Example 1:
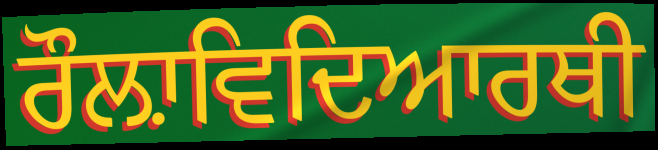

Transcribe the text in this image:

ਰੌਲ਼ਾਵਿਦਿਆਰਥੀ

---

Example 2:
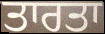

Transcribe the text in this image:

ਤਾਰਤਾ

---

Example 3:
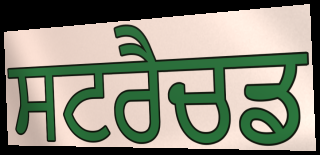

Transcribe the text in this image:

ਸਟਰੈਚਡ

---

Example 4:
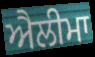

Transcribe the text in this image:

ਐਲੀਮਾ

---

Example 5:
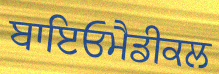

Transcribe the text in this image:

ਬਾਇਓਮੈਡੀਕਲ